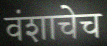
वंशाचेच